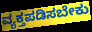
ವ್ಯಕ್ತಪಡಿಸಬೇಕು